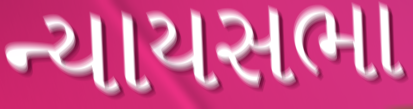
ન્યાયસભા